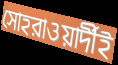
সোহরাওয়ার্দীই